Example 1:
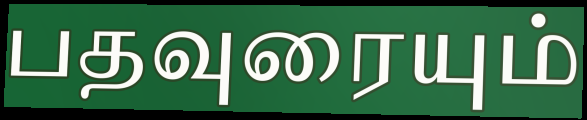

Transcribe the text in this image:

பதவுரையும்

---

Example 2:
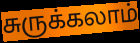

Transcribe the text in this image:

சுருக்கலாம்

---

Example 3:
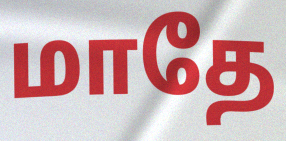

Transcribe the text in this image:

மாதே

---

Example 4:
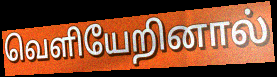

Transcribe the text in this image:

வெளியேறினால்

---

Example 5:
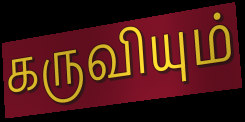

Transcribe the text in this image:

கருவியும்